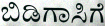
ಬಿಡಿಗಾಸಿಗೆ